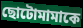
ছোটোমামাকে